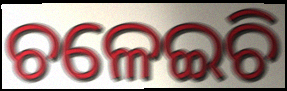
ଚଳେଇଚି